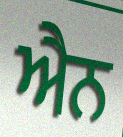
ਐਨ